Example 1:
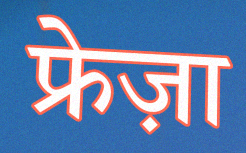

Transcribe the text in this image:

फ्रेज़ा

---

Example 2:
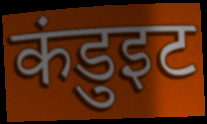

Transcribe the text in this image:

कंडुइट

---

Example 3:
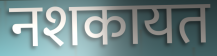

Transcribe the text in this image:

नशकायत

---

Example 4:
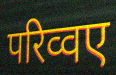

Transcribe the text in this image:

परिव्वए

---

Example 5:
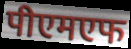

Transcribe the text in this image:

पीएमएफ